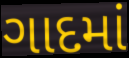
ગાદમાં